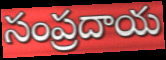
సంప్రదాయ